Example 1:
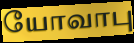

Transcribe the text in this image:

யோவாபு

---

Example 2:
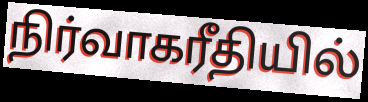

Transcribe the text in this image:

நிர்வாகரீதியில்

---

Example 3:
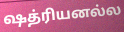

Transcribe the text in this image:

ஷத்ரியனல்ல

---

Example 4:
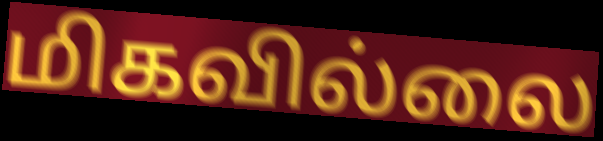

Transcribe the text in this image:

மிகவில்லை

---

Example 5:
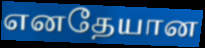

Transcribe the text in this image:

எனதேயான